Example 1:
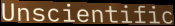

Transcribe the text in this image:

Unscientific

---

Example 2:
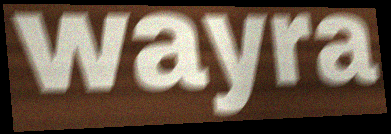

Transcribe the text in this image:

wayra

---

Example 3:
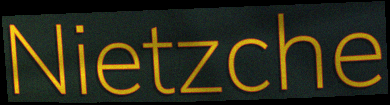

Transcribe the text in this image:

Nietzche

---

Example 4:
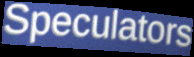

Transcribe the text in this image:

Speculators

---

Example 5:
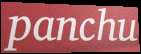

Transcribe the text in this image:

panchu